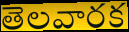
తెలవారక